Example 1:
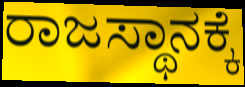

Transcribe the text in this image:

ರಾಜಸ್ಥಾನಕ್ಕೆ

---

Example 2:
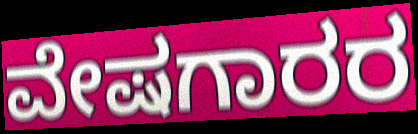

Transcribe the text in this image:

ವೇಷಗಾರರ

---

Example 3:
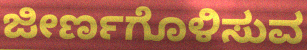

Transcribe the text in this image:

ಜೀರ್ಣಗೊಳಿಸುವ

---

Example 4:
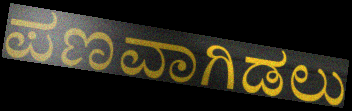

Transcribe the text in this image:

ಪಣವಾಗಿಡಲು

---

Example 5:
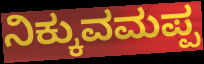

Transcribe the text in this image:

ನಿಕ್ಕುವಮಪ್ಪ